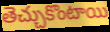
తెచ్చుకొంటాయి